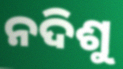
ନଦିଶୁ